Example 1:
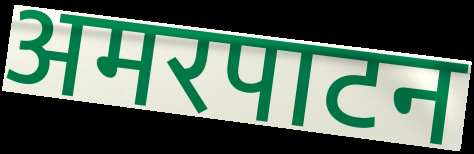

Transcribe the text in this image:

अमरपाटन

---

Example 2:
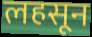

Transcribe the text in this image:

लहसून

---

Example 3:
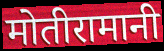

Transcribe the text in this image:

मोतीरामानी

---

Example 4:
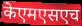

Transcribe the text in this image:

केएमएसएच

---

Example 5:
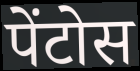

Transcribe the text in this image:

पेंटोस